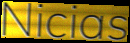
Nicias